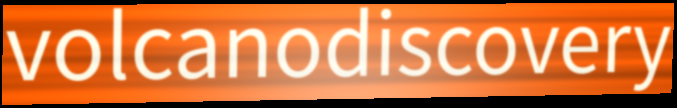
volcanodiscovery